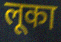
लूका